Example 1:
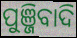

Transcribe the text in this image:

ପୁଞ୍ଜିବାଦି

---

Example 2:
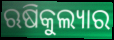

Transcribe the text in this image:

ଋଷିକୁଲ୍ୟାର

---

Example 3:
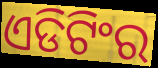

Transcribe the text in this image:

ଏଡିଟିଂର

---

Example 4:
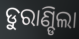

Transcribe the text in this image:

ଡୁରାଣ୍ଡିଲା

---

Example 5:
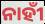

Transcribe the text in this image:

ନାହୀଁ